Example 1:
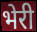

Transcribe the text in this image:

भेरी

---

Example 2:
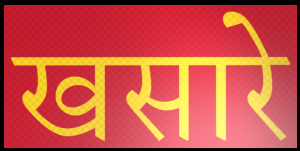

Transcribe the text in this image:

खसारे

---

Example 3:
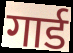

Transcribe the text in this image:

गार्ड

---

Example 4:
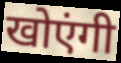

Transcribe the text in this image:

खोएंगी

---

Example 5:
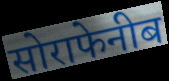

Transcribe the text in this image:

सोराफेनीब